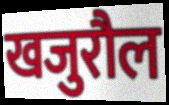
खजुरौल